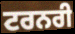
ਟਰਨਰੀ